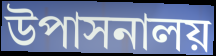
উপাসনালয়